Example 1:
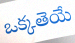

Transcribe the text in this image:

ఒక్కతెయే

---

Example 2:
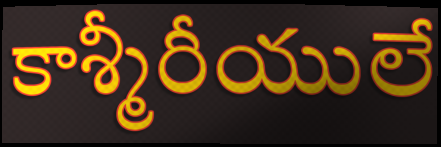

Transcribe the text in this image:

కాశ్మీరీయులే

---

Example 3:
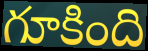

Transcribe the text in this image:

గూకింది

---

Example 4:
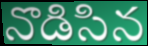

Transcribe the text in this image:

నొడిసిన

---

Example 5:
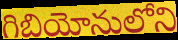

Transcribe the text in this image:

గిబియోనులోని